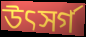
উৎসৰ্গ